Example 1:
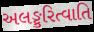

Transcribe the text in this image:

અલઙ્કરિત્વાતિ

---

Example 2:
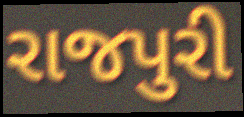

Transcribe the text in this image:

રાજપુરી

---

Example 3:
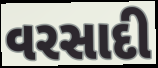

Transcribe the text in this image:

વરસાદી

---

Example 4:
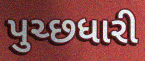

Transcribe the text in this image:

પુચ્છધારી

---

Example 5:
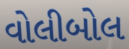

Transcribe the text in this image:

વોલીબોલ